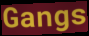
Gangs